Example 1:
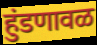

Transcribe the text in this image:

हुंडणावळ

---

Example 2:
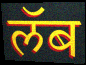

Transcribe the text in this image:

लॅब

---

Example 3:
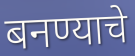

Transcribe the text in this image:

बनण्याचे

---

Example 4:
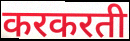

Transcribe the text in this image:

करकरती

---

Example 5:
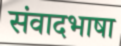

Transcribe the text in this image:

संवादभाषा